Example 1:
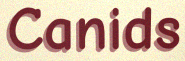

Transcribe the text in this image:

Canids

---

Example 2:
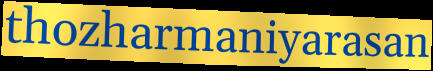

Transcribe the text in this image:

thozharmaniyarasan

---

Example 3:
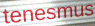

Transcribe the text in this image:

tenesmus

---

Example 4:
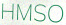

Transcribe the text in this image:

HMSO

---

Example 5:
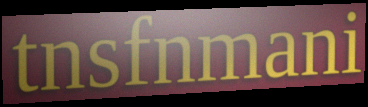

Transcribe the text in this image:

tnsfnmani